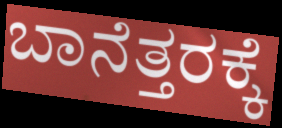
ಬಾನೆತ್ತರಕ್ಕೆ